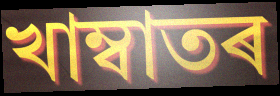
খাম্বাতৰ